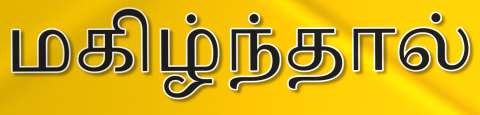
மகிழ்ந்தால்